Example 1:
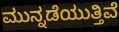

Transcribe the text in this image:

ಮುನ್ನಡೆಯುತ್ತಿವೆ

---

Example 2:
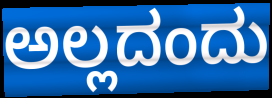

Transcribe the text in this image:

ಅಲ್ಲದಂದು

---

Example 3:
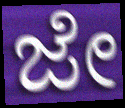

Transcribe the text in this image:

ಜೇ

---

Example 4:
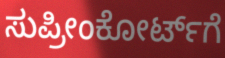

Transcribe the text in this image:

ಸುಪ್ರೀಂಕೋರ್ಟ್‌ಗೆ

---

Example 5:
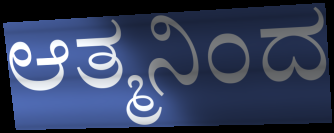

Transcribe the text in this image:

ಆತ್ಮನಿಂದ